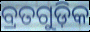
ବ୍ରତଗୁଡ଼ିକ